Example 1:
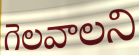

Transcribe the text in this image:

గెలవాలని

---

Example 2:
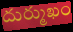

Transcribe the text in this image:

దుర్ముఖం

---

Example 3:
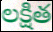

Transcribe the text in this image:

లక్షిత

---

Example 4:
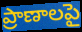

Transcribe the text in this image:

ప్రాణాలపై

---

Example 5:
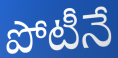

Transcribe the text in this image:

పోటీనే